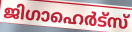
ജിഗാഹെർട്സ്